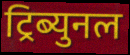
ट्रिब्युनल